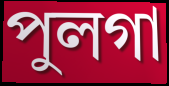
পুলগা